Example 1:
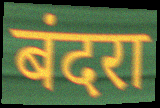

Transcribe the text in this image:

बंदरा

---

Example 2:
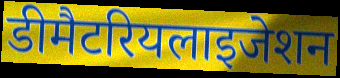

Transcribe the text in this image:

डीमैटरियलाइजेशन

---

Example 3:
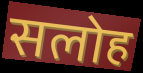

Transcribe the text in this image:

सलोह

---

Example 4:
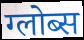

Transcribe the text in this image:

ग्लोब्स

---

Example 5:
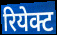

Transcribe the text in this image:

रियेक्ट